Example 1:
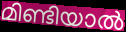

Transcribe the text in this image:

മിണ്ടിയാൽ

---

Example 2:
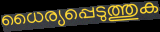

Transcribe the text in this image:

ധൈര്യപ്പെടുത്തുക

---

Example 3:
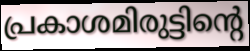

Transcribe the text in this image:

പ്രകാശമിരുട്ടിന്റെ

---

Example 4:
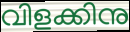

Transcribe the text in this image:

വിളക്കിനു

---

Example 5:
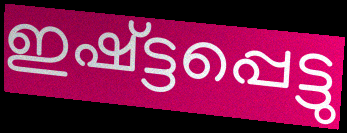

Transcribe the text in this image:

ഇഷ്ട്ടപ്പെട്ടു